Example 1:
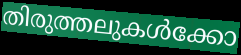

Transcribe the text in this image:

തിരുത്തലുകൾക്കോ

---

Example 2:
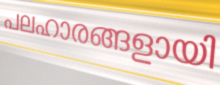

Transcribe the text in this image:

പലഹാരങ്ങളായി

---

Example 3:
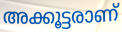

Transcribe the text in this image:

അക്കൂട്ടരാണ്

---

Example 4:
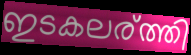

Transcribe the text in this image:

ഇടകലര്ത്തി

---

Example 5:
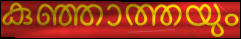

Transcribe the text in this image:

കുഞ്ഞാത്തയും